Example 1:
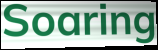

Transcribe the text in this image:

Soaring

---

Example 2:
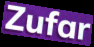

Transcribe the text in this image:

Zufar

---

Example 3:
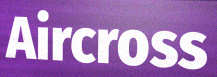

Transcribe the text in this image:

Aircross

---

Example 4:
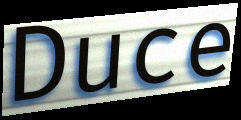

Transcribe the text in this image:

Duce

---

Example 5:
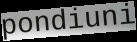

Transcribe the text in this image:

pondiuni